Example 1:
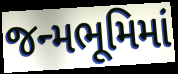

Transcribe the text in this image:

જન્મભૂમિમાં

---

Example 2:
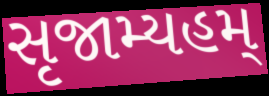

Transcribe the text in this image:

સૃજામ્યહમ્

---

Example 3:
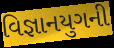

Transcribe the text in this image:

વિજ્ઞાનયુગની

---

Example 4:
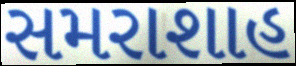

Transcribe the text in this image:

સમરાશાહ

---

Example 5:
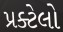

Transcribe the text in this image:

પ્રક્ટેલો